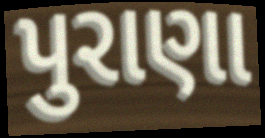
પુરાણા